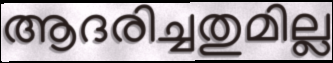
ആദരിച്ചതുമില്ല